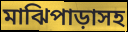
মাঝিপাড়াসহ